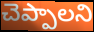
చెప్పాలని